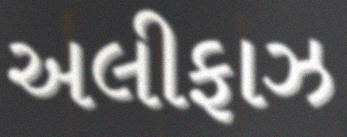
અલીફાઝ